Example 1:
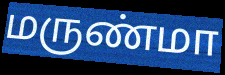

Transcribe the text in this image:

மருண்மா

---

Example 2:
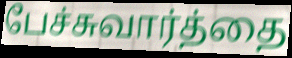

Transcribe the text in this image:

பேச்சுவார்த்தை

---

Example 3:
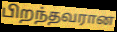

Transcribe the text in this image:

பிறந்தவரான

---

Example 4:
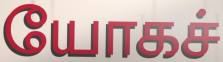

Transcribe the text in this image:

யோகச்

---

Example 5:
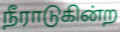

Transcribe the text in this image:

நீராடுகின்ற